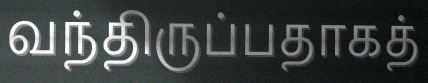
வந்திருப்பதாகத்